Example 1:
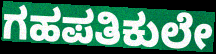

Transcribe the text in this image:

ಗಹಪತಿಕುಲೇ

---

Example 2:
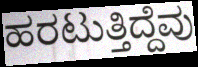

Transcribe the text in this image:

ಹರಟುತ್ತಿದ್ದೆವು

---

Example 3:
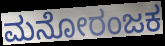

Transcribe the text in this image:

ಮನೋರಂಜಕ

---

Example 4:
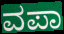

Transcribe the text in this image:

ವಪಾ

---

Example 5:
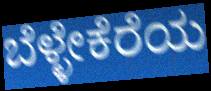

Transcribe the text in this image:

ಬೆಳ್ಳೇಕೆರೆಯ